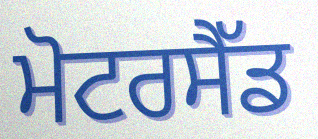
ਮੋਟਰਸੈੱਡ